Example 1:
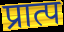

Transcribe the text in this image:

प्रात्प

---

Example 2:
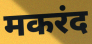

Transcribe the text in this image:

मकरंद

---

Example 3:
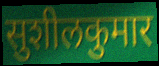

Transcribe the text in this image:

सुशीलकुमार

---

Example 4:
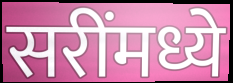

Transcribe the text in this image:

सरींमध्ये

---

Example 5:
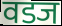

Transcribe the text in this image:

वडज